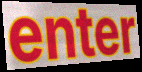
enter